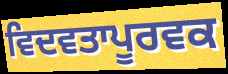
ਵਿਦਵਤਾਪੂਰਵਕ